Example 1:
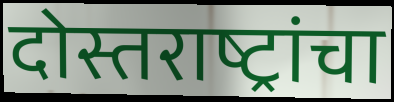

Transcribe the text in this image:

दोस्तराष्ट्रांचा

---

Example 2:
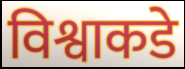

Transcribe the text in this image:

विश्वाकडे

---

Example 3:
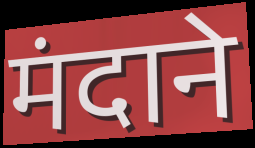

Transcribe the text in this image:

मंदाने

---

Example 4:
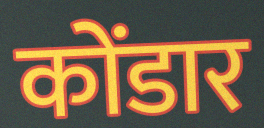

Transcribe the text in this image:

कोंडार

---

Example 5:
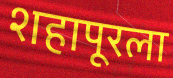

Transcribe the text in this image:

शहापूरला